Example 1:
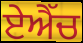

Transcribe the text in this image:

ਏਐੱਚ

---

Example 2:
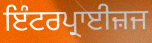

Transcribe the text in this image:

ਇੰਟਰਪ੍ਰਾਈਜ਼ਜ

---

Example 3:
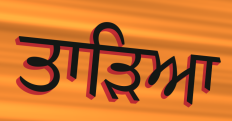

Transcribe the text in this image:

ਤਾੜਿਆ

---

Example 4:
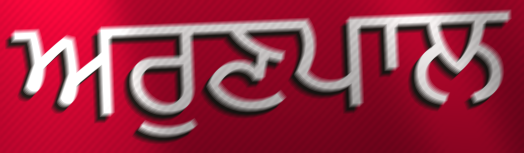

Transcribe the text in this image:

ਅਰੁਣਪਾਲ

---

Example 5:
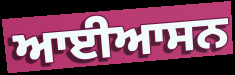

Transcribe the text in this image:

ਆਈਆਸਨ